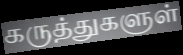
கருத்துகளுள்